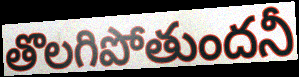
తొలగిపోతుందనీ